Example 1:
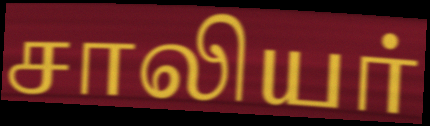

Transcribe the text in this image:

சாலியர்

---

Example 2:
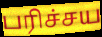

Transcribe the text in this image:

பரிச்சய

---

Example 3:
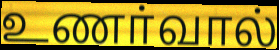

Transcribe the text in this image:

உணர்வால்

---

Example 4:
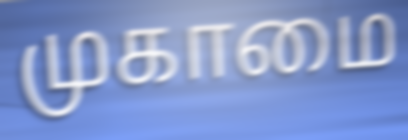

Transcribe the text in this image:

முகாமை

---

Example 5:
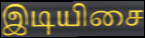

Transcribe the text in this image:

இடியிசை